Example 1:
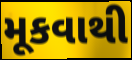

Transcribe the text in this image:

મૂકવાથી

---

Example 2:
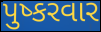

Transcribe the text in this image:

પુષ્કરવાર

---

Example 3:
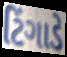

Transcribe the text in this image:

ટિંગાડે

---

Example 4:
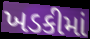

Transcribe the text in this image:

ખડકીમાં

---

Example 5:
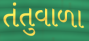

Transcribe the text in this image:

તંતુવાળા